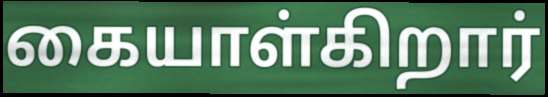
கையாள்கிறார்